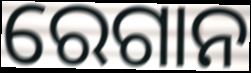
ରେଗାନ